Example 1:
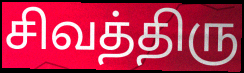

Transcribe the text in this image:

சிவத்திரு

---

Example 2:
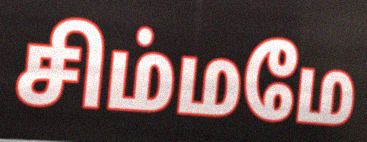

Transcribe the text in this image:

சிம்மமே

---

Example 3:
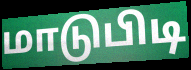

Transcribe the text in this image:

மாடுபிடி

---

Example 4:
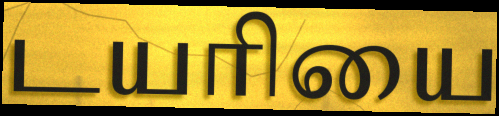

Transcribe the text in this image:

டயரியை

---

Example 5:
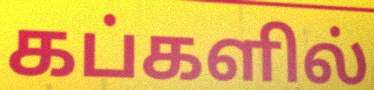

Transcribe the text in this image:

கப்களில்